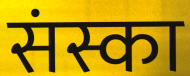
संस्का